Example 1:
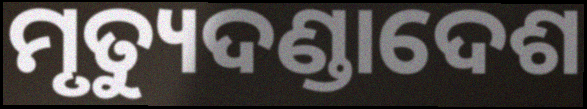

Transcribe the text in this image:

ମୃତ୍ୟୁଦଣ୍ଡାଦେଶ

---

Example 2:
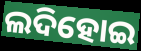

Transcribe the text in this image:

ଲଦିହୋଇ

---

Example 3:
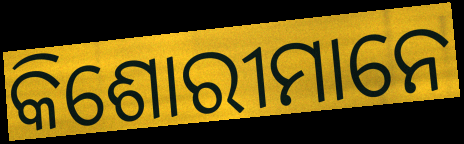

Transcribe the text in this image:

କିଶୋରୀମାନେ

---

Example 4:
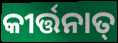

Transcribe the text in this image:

କୀର୍ତ୍ତନାତ୍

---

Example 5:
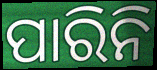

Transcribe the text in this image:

ପାରିନି